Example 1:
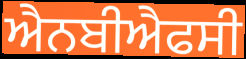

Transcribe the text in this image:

ਐਨਬੀਐਫਸੀ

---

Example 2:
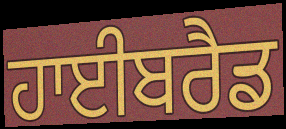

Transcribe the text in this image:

ਹਾਈਬਰੈਡ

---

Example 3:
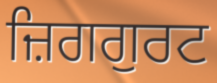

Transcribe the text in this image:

ਜ਼ਿਗਗੁਰਟ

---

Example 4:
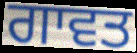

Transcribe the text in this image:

ਗਾਵਤ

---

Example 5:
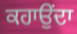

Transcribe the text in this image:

ਕਹਾਉਂਦਾ